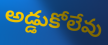
అడ్డుకోలేవు